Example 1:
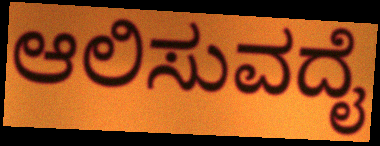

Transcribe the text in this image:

ಆಲಿಸುವದೈ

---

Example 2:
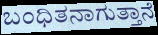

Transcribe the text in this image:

ಬಂಧಿತನಾಗುತ್ತಾನೆ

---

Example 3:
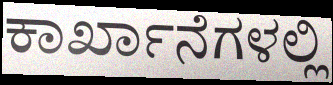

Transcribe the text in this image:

ಕಾರ್ಖಾನೆಗಳಲ್ಲಿ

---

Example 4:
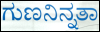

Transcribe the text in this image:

ಗುಣನಿನ್ನತಾ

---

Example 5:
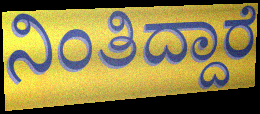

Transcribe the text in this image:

ನಿಂತಿದ್ದಾರೆ